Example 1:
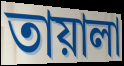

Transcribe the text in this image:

তায়ালা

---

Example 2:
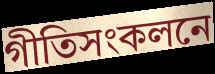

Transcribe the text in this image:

গীতিসংকলনে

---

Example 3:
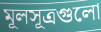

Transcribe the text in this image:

মূলসূত্রগুলো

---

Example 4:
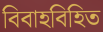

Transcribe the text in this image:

বিবাহবিহিত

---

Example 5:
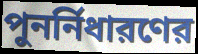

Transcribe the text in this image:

পুনর্নিধারণের